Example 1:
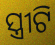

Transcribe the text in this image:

ସ୍ତ୍ରୀଟି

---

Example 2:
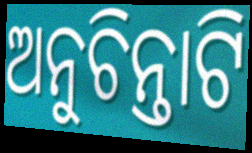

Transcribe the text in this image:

ଅନୁଚିନ୍ତାଟି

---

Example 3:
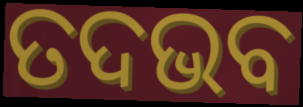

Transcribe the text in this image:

ତଦଭବ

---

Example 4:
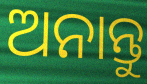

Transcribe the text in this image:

ଅନାନ୍ତୁ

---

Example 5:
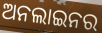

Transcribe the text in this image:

ଅନଲାଇନର